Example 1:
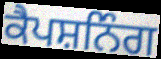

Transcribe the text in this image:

ਕੈਪਸ਼ਨਿੰਗ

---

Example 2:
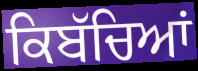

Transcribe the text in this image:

ਕਿਬੱਚਿਆਂ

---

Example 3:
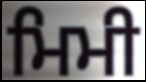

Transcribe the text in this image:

ਮਿਮੀ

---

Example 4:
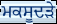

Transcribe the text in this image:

ਮਕਸੂਦੜੇ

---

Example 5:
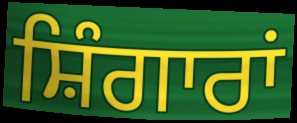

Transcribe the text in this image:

ਸ਼ਿੰਗਾਰਾਂ